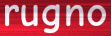
rugno